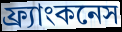
ফ্র্যাংকনেস